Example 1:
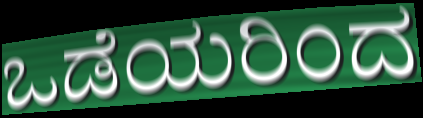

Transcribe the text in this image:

ಒಡೆಯರಿಂದ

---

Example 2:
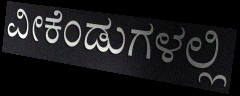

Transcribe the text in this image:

ವೀಕೆಂಡುಗಳಲ್ಲಿ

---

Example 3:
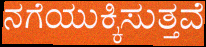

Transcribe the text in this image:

ನಗೆಯುಕ್ಕಿಸುತ್ತವೆ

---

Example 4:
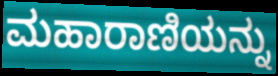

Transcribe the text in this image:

ಮಹಾರಾಣಿಯನ್ನು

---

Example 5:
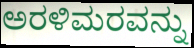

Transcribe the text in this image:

ಅರಳಿಮರವನ್ನು